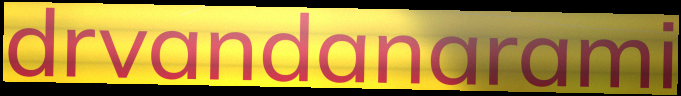
drvandanarami